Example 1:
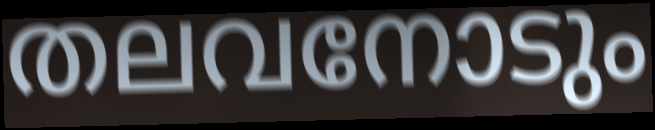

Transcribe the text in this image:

തലവനോടും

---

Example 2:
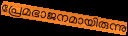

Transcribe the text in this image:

പ്രേമഭാജനമായിരുന്നു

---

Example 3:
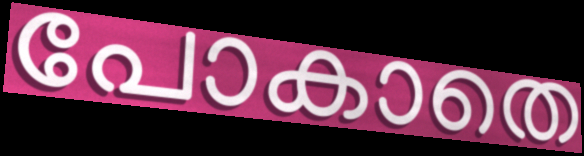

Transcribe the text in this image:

പോകാതെ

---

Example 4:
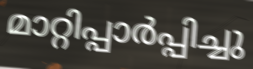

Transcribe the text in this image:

മാറ്റിപ്പാർപ്പിച്ചു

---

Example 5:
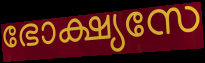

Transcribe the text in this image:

ഭോക്ഷ്യസേ